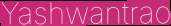
Yashwantrao